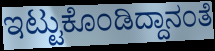
ಇಟ್ಟುಕೊಂಡಿದ್ದಾನಂತೆ